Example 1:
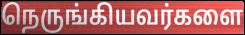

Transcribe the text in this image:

நெருங்கியவர்களை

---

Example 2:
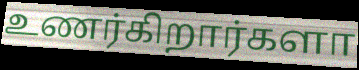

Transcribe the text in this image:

உணர்கிறார்களா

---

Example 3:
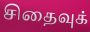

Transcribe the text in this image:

சிதைவுக்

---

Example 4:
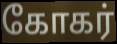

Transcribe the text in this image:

கோகர்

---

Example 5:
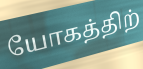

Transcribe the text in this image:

யோகத்திற்